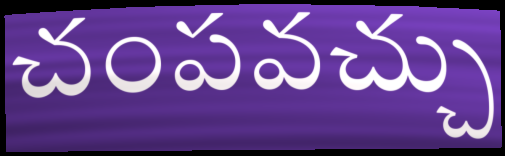
చంపవచ్చు